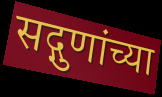
सद्गुणांच्या